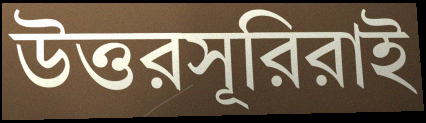
উত্তরসূরিরাই